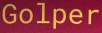
Golper